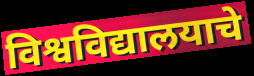
विश्वविद्यालयाचे